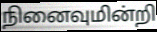
நினைவுமின்றி